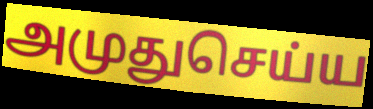
அமுதுசெய்ய